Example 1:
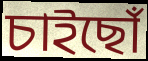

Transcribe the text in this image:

চাইছোঁ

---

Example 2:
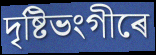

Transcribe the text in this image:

দৃষ্টিভংগীৰে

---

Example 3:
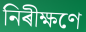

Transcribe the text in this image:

নিৰীক্ষণে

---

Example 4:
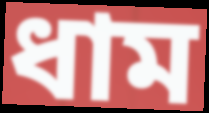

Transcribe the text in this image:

ধাম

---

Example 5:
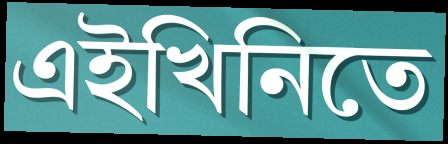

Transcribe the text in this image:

এইখিনিতে